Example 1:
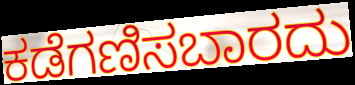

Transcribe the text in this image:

ಕಡೆಗಣಿಸಬಾರದು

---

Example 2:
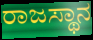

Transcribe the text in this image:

ರಾಜಸ್ಥಾನ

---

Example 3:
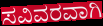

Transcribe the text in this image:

ಸವಿವರವಾಗಿ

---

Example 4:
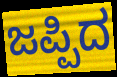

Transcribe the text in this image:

ಜಪ್ಪಿದ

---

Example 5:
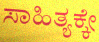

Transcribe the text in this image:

ಸಾಹಿತ್ಯಕ್ಕೇ